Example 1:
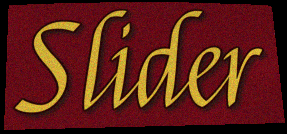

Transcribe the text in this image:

Slider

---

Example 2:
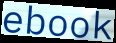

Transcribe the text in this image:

ebook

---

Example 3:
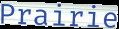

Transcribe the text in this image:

Prairie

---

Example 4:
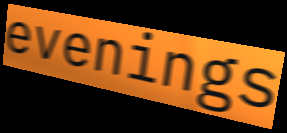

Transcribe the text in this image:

evenings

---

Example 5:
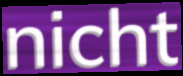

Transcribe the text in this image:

nicht